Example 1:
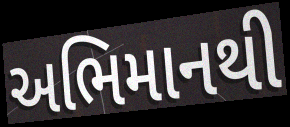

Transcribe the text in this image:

અભિમાનથી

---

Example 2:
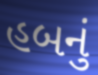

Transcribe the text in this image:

હબનું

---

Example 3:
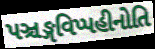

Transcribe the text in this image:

પઞ્ચઙ્ગવિપ્પહીનોતિ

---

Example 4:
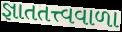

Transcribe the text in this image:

જ્ઞાતતત્ત્વવાળા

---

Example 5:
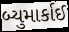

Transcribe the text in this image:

બ્યુમાર્કાઈ